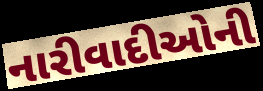
નારીવાદીઓની